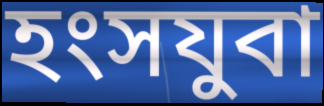
হংসযুবা